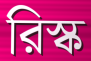
রিস্ক